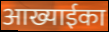
आख्याईका